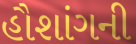
હૌશાંગની